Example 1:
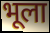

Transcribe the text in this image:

भूला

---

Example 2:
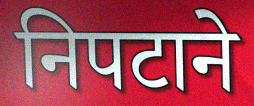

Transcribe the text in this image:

निपटाने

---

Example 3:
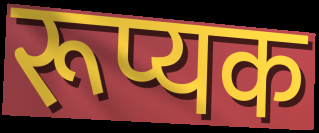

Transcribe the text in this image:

रूप्यक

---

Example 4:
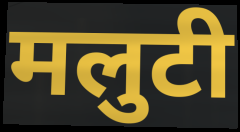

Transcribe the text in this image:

मलुटी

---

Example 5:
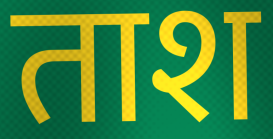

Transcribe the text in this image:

ताश